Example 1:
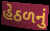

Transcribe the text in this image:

હેઠળનું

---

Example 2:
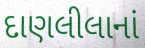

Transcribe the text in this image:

દાણલીલાનાં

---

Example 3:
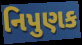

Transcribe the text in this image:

નિપુણક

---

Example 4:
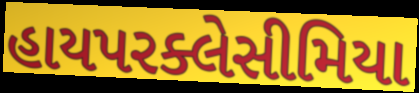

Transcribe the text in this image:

હાયપરક્લેસીમિયા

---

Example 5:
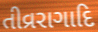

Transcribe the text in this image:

તીવ્રરાગાદિ